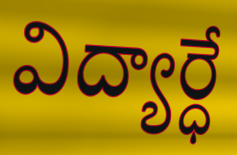
విద్యార్ధే